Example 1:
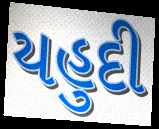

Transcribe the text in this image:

યહુદી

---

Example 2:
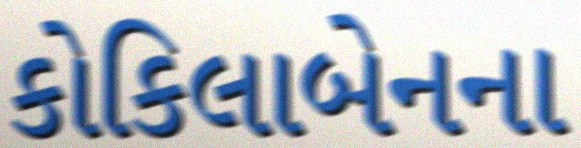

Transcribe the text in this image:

કોકિલાબેનના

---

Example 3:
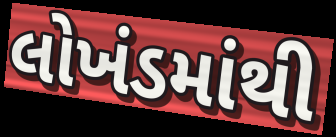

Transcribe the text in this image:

લોખંડમાંથી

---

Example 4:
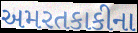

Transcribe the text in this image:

અમરતકાકીના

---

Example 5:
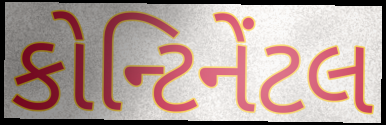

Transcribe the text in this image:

કોન્ટિનેંટલ